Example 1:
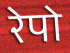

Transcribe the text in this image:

रेपो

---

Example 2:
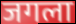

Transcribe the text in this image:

जगला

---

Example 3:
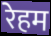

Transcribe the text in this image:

रेहम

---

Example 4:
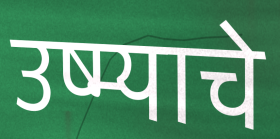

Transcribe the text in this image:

उष्म्याचे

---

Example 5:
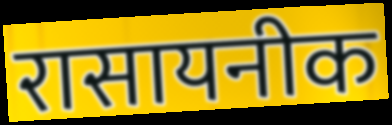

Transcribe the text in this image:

रासायनीक